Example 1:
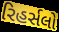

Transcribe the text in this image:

રિહર્સલો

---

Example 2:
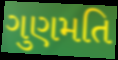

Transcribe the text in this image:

ગુણમતિ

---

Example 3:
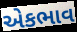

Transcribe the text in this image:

એકભાવ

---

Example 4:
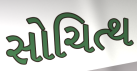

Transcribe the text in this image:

સોચિત્થ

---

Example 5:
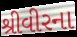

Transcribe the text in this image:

શ્રીવીરના